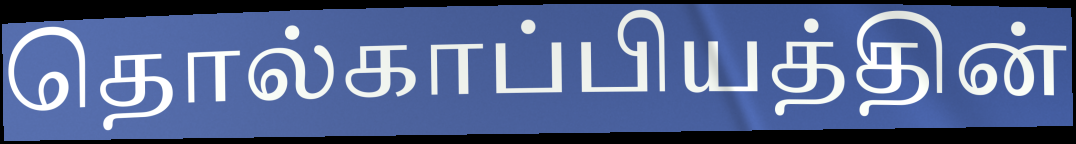
தொல்காப்பியத்தின்